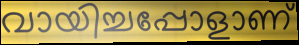
വായിച്ചപ്പോളാണ്